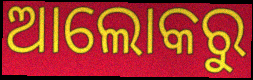
ଆଲୋକରୁ